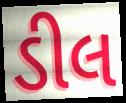
ડીલ